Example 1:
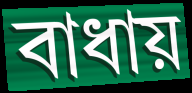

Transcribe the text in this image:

বাধায়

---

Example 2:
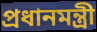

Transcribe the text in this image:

প্রধানমন্ত্রী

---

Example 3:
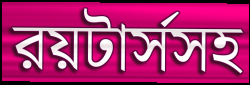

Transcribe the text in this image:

রয়টার্সসহ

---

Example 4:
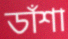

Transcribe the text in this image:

ডাঁশা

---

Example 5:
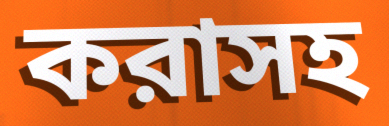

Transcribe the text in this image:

করাসহ